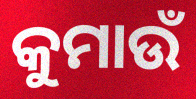
କୁମାଉଁ